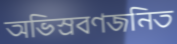
অভিস্রবণজনিত